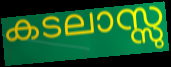
കടലാസ്സു